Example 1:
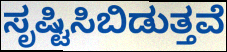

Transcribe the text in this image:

ಸೃಷ್ಟಿಸಿಬಿಡುತ್ತವೆ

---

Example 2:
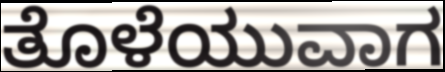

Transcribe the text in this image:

ತೊಳೆಯುವಾಗ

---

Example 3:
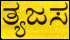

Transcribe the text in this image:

ತ್ಯಜಸ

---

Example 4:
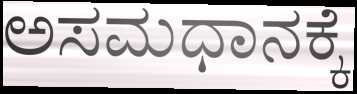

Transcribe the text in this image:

ಅಸಮಧಾನಕ್ಕೆ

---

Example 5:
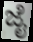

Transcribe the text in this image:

ಜೈ